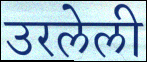
उरलेली